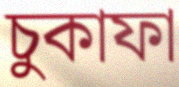
চুকাফা